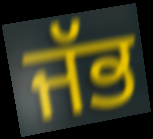
ਜੱਭ